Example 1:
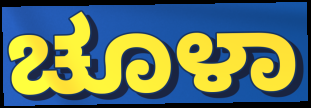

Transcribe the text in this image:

ಚೂಳಾ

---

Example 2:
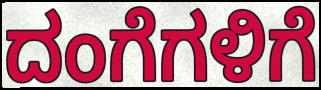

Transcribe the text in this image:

ದಂಗೆಗಳಿಗೆ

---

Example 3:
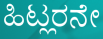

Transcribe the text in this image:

ಹಿಟ್ಲರನೇ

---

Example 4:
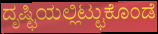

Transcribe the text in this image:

ದೃಷ್ಟಿಯಲ್ಲಿಟ್ಟುಕೊಂಡೆ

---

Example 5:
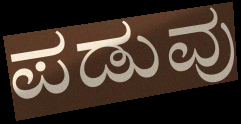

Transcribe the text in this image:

ಪಡುವು